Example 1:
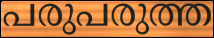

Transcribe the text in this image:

പരുപരുത്ത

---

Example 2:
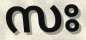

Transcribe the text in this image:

സഃ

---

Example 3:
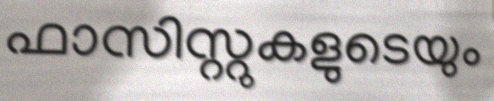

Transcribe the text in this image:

ഫാസിസ്റ്റുകളുടെയും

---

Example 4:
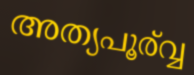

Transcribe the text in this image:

അത്യപൂര്വ്വ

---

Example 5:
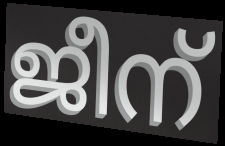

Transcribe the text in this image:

ജീന്